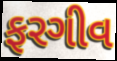
ફરગીવ